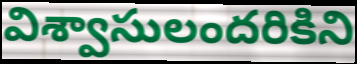
విశ్వాసులందరికిని